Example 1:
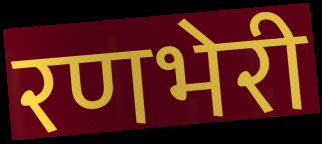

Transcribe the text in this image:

रणभेरी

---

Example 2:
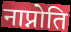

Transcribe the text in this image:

नाप्नोति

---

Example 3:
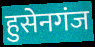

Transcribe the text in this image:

हुसेनगंज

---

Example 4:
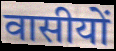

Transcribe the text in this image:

वासीयों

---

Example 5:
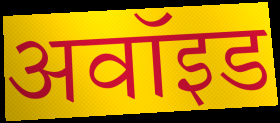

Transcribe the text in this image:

अवॉइड